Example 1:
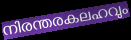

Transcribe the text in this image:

നിരന്തരകലഹവും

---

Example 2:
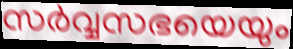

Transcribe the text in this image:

സർവ്വസഭയെയും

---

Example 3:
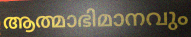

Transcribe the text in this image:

ആത്മാഭിമാനവും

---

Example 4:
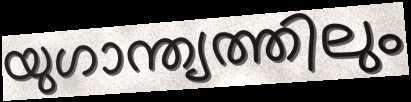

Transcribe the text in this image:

യുഗാന്ത്യത്തിലും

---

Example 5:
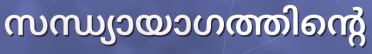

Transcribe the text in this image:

സന്ധ്യായാഗത്തിന്റെ